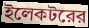
ইলেকটরের